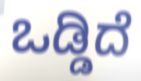
ಒಡ್ಡಿದೆ